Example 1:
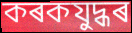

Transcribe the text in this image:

কৰকযুদ্ধৰ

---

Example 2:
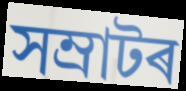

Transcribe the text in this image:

সম্ৰাটৰ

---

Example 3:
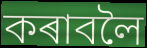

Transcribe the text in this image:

কৰাবলৈ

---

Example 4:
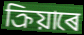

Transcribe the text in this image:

ক্ৰিয়াৰে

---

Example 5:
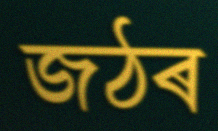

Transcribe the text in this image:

জঠৰ